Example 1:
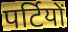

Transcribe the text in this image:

पर्टियों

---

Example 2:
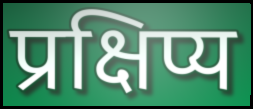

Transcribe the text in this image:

प्रक्षिप्य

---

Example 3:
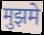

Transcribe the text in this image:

मुझमे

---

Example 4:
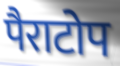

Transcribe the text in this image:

पैराटोप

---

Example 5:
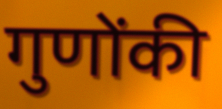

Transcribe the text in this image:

गुणोंकी